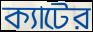
ক্যাটের